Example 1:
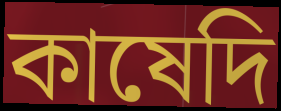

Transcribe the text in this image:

কাষেদি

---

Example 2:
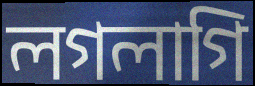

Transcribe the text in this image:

লগলাগি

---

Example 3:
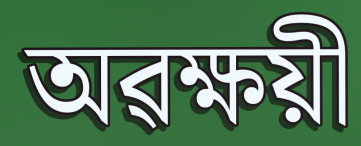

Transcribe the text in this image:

অৱক্ষয়ী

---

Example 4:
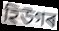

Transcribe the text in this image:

হিউগৰ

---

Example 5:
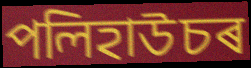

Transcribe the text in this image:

পলিহাউচৰ